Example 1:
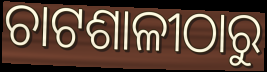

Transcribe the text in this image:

ଚାଟଶାଳୀଠାରୁ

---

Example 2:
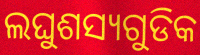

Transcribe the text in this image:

ଲଘୁଶସ୍ୟଗୁଡିକ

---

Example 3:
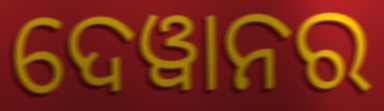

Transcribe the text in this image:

ଦେୱାନର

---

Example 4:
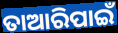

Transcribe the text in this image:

ତାଆରିପାଇଁ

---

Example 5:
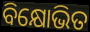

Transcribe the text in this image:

ବିକ୍ଷୋଭିତ